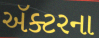
ઍક્ટરના